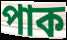
পাক